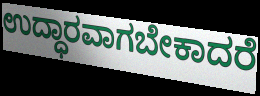
ಉದ್ಧಾರವಾಗಬೇಕಾದರೆ